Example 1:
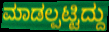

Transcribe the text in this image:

ಮಾಡಲ್ಪಟ್ಟಿದ್ದು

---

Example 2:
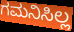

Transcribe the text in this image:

ಗಮನಿಸಿಲ್ಲ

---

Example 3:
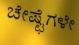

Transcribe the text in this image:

ಚೇಷ್ಟೆಗಳೇ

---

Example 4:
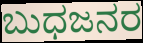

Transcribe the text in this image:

ಬುಧಜನರ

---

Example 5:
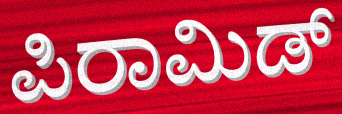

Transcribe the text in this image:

ಪಿರಾಮಿಡ್